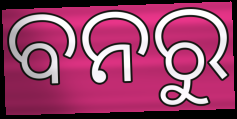
ବନରୁ